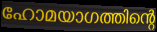
ഹോമയാഗത്തിന്റെ